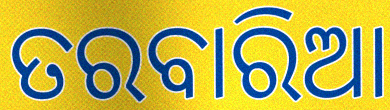
ତରବାରିଆ